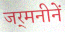
जर्मनीनें